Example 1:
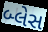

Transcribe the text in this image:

બ્લેસ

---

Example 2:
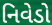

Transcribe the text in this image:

નિવેડો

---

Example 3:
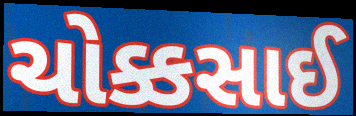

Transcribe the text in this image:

ચોક્કસાઈ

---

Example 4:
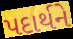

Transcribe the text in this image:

પદાર્થને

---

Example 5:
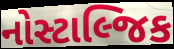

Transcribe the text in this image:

નોસ્ટાલ્જિક